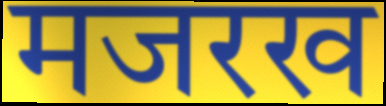
मजरख